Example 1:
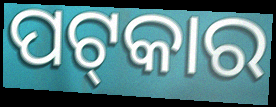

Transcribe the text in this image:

ପଟ୍‌କାର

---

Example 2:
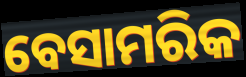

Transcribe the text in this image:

ବେସାମରିକ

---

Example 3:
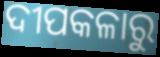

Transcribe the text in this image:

ଦୀପକଳାରୁ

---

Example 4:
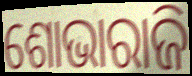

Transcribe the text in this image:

ଶୋଭାରାଜି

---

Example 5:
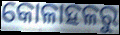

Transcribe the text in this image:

କୋଳାହଳରୁ